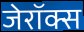
जेरॉक्स